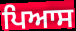
ਪਿਆਸ